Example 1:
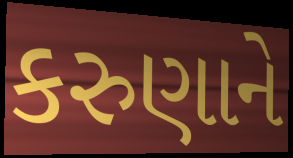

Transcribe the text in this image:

કરુણાને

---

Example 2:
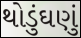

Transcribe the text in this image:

થોડુંઘણું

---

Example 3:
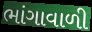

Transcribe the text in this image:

ભાંગાવાળી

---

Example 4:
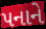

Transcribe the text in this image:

પનાને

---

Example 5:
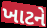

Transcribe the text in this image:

ખાટને